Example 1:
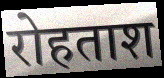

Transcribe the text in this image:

रोहताश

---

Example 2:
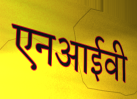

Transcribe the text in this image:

एनआईवी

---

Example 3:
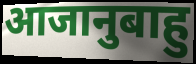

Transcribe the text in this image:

आजानुबाहु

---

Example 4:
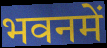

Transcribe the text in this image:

भवनमें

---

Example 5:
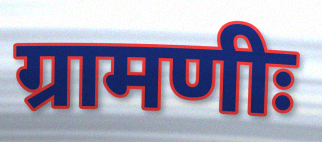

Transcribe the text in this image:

ग्रामणीः